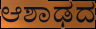
ಆಶಾಢದ